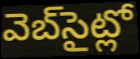
వెబ్‌సైట్లో